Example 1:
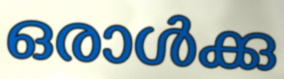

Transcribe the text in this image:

ഒരാൾക്കു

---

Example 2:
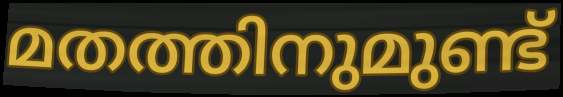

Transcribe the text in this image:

മതത്തിനുമുണ്ട്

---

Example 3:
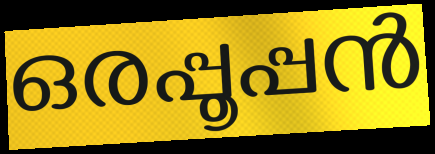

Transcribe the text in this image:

ഒരപ്പൂപ്പൻ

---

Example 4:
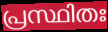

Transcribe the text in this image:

പ്രസ്ഥിതഃ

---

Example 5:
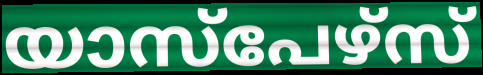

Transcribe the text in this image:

യാസ്പേഴ്സ്